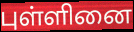
புள்ளினை